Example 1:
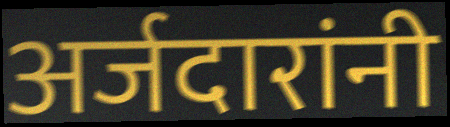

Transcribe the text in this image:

अर्जदारांनी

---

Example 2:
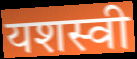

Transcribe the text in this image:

यशस्‍वी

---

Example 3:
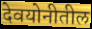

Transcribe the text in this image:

देवयोनीतील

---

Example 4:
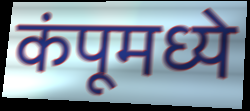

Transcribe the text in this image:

कंपूमध्ये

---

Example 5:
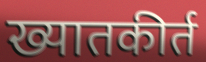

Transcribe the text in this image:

ख्यातकीर्त